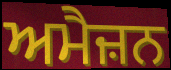
ਅਮੈਜ਼ਨ